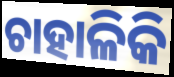
ଚାହାଳିକି